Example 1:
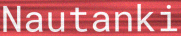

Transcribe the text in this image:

Nautanki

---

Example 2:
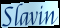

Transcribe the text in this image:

Slavin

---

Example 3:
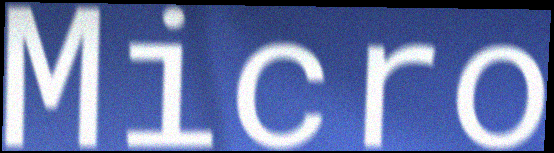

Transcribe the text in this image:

Micro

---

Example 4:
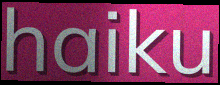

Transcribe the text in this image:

haiku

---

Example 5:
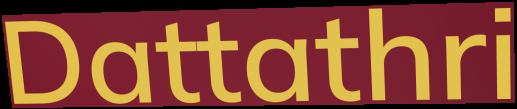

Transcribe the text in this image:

Dattathri